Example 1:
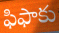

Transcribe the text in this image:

ఫిఫాకు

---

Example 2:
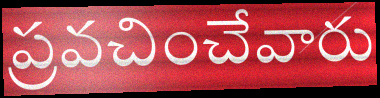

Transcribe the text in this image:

ప్రవచించేవారు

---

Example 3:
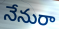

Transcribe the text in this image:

నేనురా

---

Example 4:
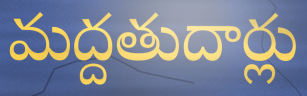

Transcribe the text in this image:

మద్దతుదార్లు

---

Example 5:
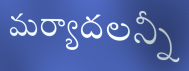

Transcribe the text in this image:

మర్యాదలన్నీ